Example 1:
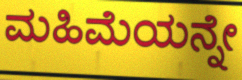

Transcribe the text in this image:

ಮಹಿಮೆಯನ್ನೇ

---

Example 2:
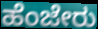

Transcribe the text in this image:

ಹೆಂಜೇರು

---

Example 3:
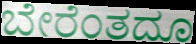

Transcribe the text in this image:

ಬೇರೆಂತದೂ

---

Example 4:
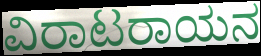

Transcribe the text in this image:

ವಿರಾಟರಾಯನ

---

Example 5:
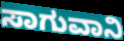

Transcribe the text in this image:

ಸಾಗುವಾನಿ